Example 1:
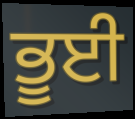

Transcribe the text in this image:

ਭੂਈ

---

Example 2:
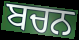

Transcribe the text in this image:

ਬਚਨ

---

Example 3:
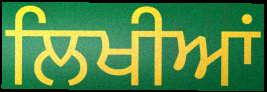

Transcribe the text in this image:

ਲਿਖੀਆਂ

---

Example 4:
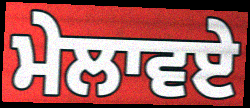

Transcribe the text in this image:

ਮੇਲਾਵਏ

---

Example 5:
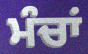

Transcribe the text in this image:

ਮੰਚਾਂ